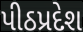
પીઠપ્રદેશ